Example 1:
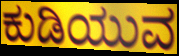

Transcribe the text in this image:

ಕುಡಿಯುವ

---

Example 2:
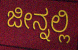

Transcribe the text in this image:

ಜೀನ್ನಲ್ಲಿ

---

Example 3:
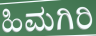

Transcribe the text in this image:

ಹಿಮಗಿರಿ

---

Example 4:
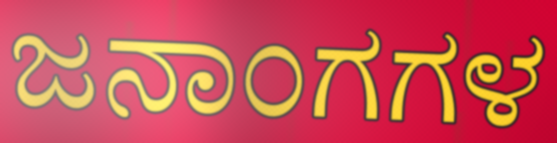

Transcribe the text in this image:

ಜನಾಂಗಗಳ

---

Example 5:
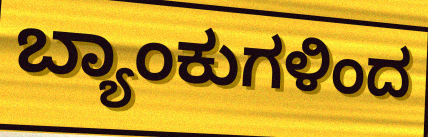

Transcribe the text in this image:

ಬ್ಯಾಂಕುಗಳಿಂದ